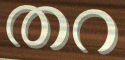
തറ